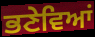
ਭਣੇਵਿਆਂ